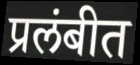
प्रलंबीत